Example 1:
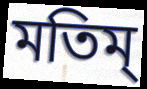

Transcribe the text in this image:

মতিম্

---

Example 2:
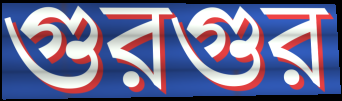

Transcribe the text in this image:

গুরগুর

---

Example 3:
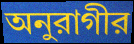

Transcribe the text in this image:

অনুরাগীর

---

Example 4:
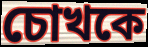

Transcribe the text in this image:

চোখকে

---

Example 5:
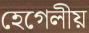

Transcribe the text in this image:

হেগেলীয়